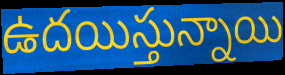
ఉదయిస్తున్నాయి